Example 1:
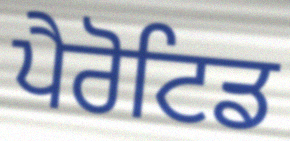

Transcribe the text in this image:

ਪੈਰੋਟਿਡ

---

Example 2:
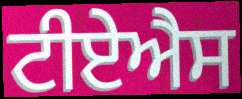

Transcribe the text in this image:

ਟੀਏਐਸ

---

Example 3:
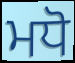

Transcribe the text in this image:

ਮਧੋ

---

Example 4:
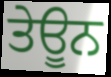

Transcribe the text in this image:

ਤੇਊਨ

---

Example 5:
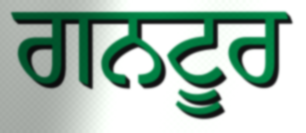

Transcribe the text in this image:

ਗਨਟੂਰ